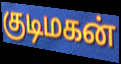
குடிமகன்